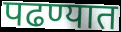
पढण्यात